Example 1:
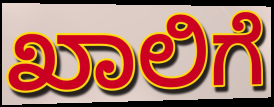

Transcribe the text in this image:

ಖಾಲಿಗೆ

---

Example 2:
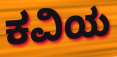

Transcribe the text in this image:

ಕವಿಯ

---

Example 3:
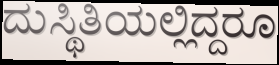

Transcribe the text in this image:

ದುಸ್ಥಿತಿಯಲ್ಲಿದ್ದರೂ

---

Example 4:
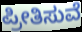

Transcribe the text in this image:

ಪ್ರೀತಿಸುವೆ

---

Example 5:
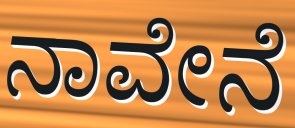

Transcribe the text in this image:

ನಾವೇನೆ